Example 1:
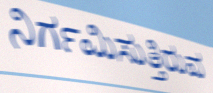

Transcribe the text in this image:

ನಿರ್ಗಮಿಸುತ್ತಿರುವ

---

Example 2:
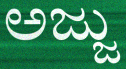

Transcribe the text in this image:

ಅಜ್ಜು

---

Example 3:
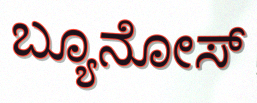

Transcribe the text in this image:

ಬ್ಯೂನೋಸ್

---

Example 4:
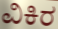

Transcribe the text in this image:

ವಿಕಿರ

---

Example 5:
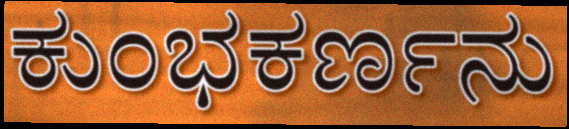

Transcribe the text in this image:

ಕುಂಭಕರ್ಣನು